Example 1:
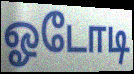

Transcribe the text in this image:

ஓடோடி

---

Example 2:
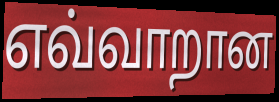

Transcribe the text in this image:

எவ்வாறான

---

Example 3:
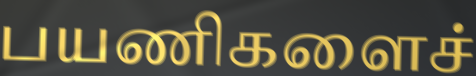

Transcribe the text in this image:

பயணிகளைச்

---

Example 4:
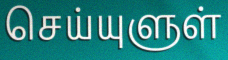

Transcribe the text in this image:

செய்யுளுள்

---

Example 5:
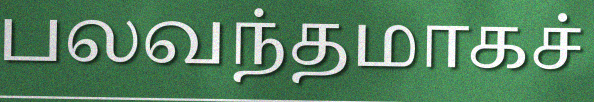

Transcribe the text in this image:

பலவந்தமாகச்